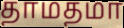
தாமதமா